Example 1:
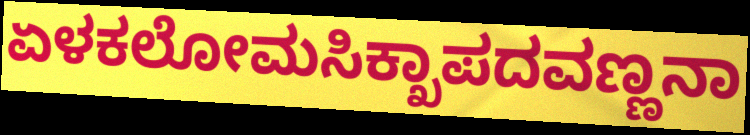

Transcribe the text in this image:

ಏಳಕಲೋಮಸಿಕ್ಖಾಪದವಣ್ಣನಾ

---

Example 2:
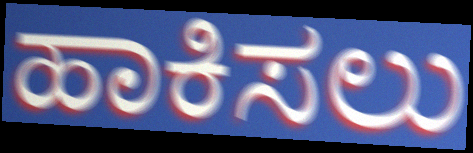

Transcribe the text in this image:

ಹಾಕಿಸಲು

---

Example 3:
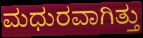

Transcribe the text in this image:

ಮಧುರವಾಗಿತ್ತು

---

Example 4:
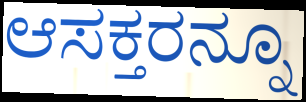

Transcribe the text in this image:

ಆಸಕ್ತರನ್ನೂ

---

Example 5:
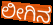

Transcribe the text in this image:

ಲೀಗಿನ